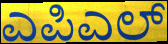
ಎಪಿಎಲ್